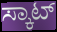
ಸ್ಕಾಟ್